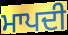
ਮਾਪਦੀ